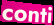
conti